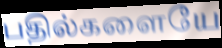
பதில்களையே